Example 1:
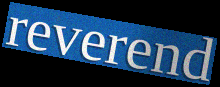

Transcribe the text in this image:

reverend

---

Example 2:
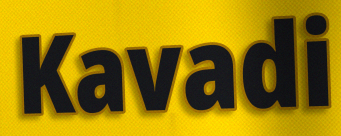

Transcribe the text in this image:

Kavadi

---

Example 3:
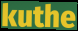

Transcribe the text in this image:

kuthe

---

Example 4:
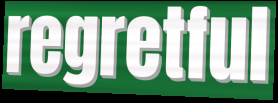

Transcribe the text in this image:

regretful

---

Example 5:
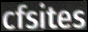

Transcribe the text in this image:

cfsites